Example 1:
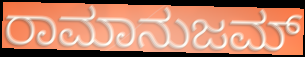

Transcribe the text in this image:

ರಾಮಾನುಜಮ್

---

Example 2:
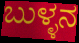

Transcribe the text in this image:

ಬುಳ್ಳನ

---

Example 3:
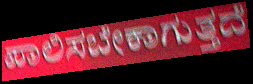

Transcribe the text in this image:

ಪಾಲಿಸಬೇಕಾಗುತ್ತದೆ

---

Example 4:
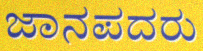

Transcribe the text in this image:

ಜಾನಪದರು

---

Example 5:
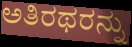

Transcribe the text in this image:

ಅತಿರಥರನ್ನು